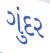
ગુંદર